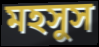
মহসুস